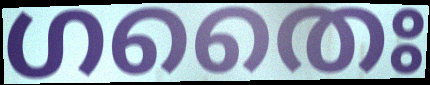
ഗതൈഃ